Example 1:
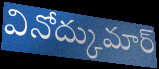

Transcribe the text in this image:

వినోద్కుమార్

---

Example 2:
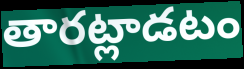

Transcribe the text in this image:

తారట్లాడటం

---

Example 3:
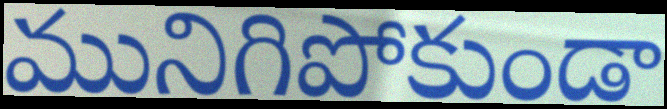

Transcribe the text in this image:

మునిగిపోకుండా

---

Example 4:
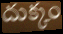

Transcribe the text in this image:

దుక్కం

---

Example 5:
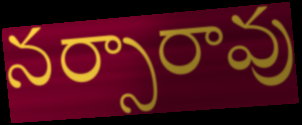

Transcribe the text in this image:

నర్సారావు